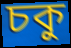
চকু